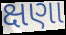
ક્ષણા